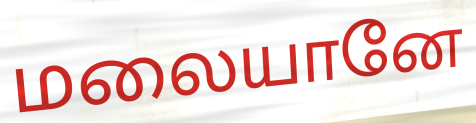
மலையானே